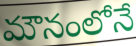
మౌనంలోనే